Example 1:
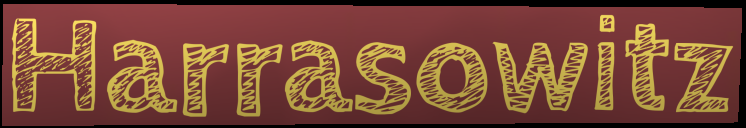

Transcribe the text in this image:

Harrasowitz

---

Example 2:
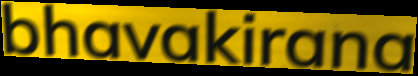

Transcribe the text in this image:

bhavakirana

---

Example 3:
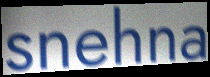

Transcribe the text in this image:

snehna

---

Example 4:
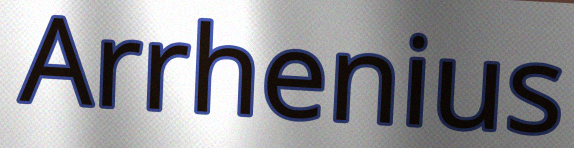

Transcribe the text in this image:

Arrhenius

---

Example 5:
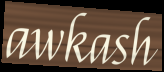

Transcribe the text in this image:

awkash